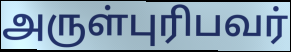
அருள்புரிபவர்